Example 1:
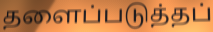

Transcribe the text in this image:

தளைப்படுத்தப்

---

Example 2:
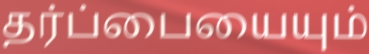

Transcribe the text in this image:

தர்ப்பையையும்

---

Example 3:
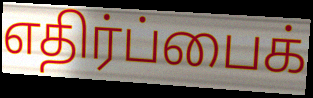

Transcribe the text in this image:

எதிர்ப்பைக்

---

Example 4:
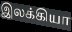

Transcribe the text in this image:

இலக்கியா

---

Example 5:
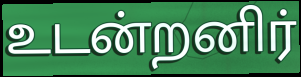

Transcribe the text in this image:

உடன்றனிர்